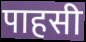
पाहसी